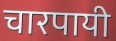
चारपायी